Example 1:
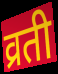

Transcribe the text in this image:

व्रती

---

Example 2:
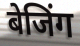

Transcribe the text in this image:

बेजिंग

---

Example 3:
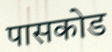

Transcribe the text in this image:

पासकोड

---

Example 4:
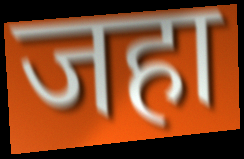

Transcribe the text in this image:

जहा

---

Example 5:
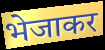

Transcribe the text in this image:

भेजाकर